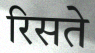
रिसते